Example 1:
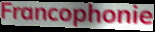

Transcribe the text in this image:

Francophonie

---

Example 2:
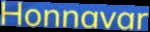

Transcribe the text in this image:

Honnavar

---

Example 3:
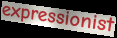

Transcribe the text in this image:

expressionist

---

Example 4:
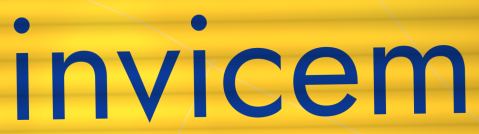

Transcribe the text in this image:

invicem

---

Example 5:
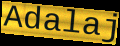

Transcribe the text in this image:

Adalaj